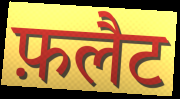
फ़लैट